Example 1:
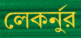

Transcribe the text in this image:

লেকর্নুর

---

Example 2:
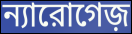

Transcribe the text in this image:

ন্যারোগেজ়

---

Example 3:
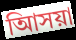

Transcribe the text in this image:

আিসয়া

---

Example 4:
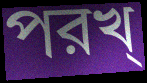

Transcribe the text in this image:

পরখ্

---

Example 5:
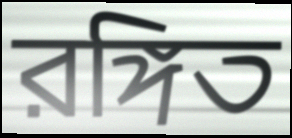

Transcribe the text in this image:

রঙ্গিত